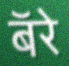
बॅरे